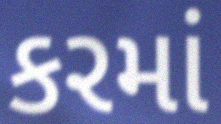
કરમાં